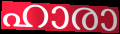
ഹാരാ